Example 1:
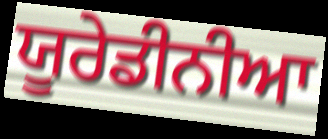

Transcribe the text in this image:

ਯੂਰੇਡੀਨੀਆ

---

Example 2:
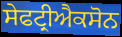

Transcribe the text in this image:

ਸੇਫਟ੍ਰੀਐਕਸੋਨ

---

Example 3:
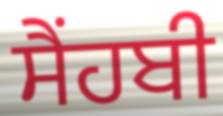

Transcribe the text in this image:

ਸੈਂਹਬੀ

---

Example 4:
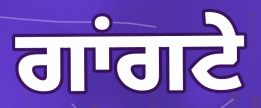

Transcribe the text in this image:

ਗਾਂਗਟੇ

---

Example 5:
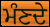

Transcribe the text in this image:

ਮੰਣਦੇ